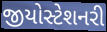
જીયોસ્ટેશનરી